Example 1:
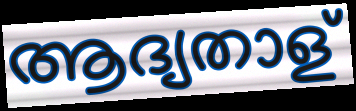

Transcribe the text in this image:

ആദ്യതാള്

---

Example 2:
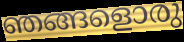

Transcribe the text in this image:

ഞങ്ങളൊരു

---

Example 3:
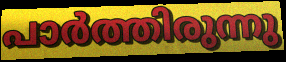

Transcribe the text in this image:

പാർത്തിരുന്നു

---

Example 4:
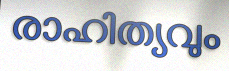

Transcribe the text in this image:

രാഹിത്യവും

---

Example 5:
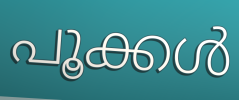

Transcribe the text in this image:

പൂക്കൾ